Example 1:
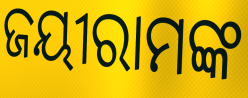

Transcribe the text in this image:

ଜୟୀରାମଙ୍କ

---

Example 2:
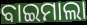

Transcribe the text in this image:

ବାଇମାଲା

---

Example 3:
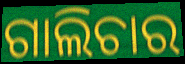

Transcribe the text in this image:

ଗାଲିଚାର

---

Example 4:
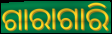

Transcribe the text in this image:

ଗାରାଗାରି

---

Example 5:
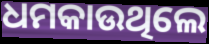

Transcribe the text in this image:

ଧମକାଉଥିଲେ